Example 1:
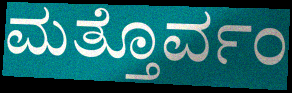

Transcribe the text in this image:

ಮತ್ತೊರ್ವಂ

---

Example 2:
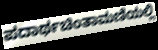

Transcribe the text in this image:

ಪದಾರ್ಥಚಿಂತಾಮಣಿಯಲ್ಲಿ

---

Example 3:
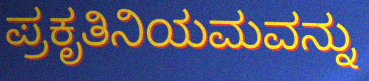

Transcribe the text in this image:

ಪ್ರಕೃತಿನಿಯಮವನ್ನು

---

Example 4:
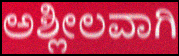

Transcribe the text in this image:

ಅಶ್ಲೀಲವಾಗಿ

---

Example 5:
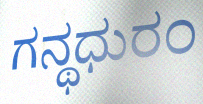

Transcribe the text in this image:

ಗನ್ಥಧುರಂ